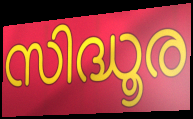
സിദ്ധൂര